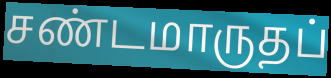
சண்டமாருதப்